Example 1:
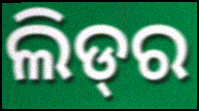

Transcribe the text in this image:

ଲିଡ୍‌ର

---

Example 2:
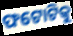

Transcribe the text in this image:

ଫଟୋଟିକୁ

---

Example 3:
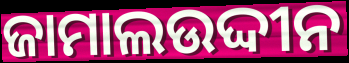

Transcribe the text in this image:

ଜାମାଲଉଦ୍ଦୀନ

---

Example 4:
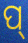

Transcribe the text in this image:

ପ୍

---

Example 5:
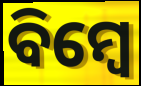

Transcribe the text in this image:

ବିମ୍ବେ